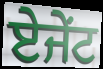
ਏਜੇਂਟ